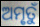
ଅମୃତୁଁ